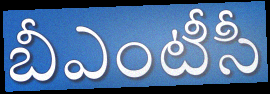
బీఎంటీసీ